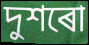
দুশৰো